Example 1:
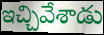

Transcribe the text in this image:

ఇచ్చివేశాడు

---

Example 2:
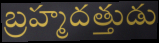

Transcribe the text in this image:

బ్రహ్మదత్తుడు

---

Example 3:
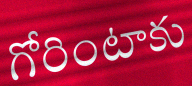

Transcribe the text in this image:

గోరింటాకు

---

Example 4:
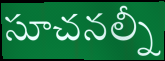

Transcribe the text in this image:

సూచనల్నీ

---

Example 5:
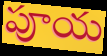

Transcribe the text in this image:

పూయ